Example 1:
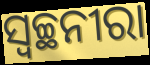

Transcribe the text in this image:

ସ୍ୱଚ୍ଛନୀରା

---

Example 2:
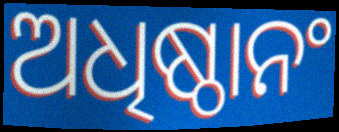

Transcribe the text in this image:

ଅଧିଷ୍ଠାନଂ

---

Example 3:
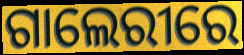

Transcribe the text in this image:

ଗାଲେରୀରେ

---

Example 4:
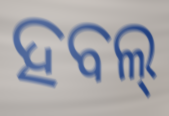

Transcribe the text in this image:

ହବଲ୍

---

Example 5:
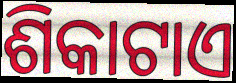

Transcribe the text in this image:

ଶିକାଟାଏ